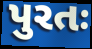
પુરતઃ